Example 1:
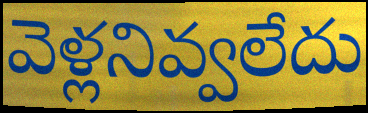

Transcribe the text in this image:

వెళ్లనివ్వలేదు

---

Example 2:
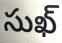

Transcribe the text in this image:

సుఖ్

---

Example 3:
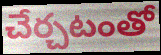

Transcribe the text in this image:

చేర్చటంతో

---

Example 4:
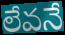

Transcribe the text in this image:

లేవనే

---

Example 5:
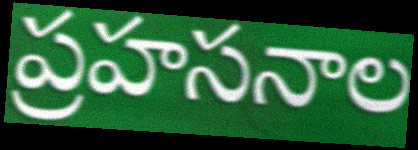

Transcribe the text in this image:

ప్రహసనాల